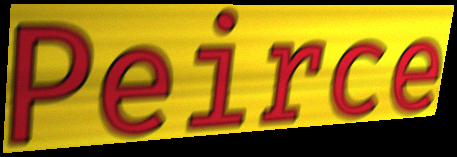
Peirce